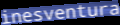
inesventura